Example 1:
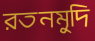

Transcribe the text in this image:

রতনমুদি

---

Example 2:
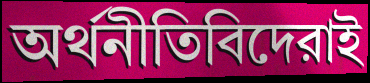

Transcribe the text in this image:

অর্থনীতিবিদেরাই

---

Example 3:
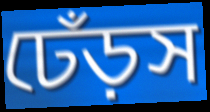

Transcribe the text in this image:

ঢেঁড়স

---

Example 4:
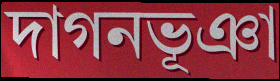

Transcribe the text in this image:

দাগনভূঞা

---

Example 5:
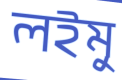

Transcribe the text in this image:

লইমু